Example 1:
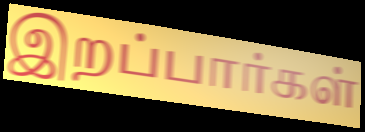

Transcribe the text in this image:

இறப்பார்கள்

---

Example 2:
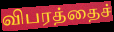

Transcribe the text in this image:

விபரத்தைச்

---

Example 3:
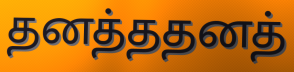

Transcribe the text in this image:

தனத்ததனத்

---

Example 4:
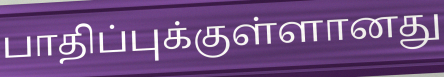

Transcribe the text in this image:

பாதிப்புக்குள்ளானது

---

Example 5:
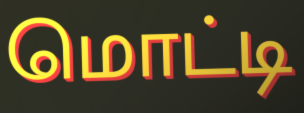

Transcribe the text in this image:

மொட்டி